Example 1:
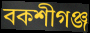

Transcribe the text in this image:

বকশীগঞ্জ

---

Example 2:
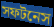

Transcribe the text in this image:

সফটনেস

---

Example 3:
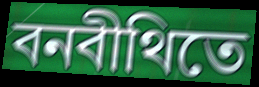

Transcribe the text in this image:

বনবীথিতে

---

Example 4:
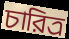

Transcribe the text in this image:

চারিত্র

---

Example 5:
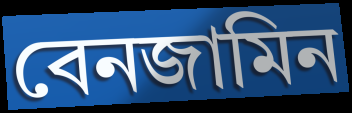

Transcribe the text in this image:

বেনজামিন